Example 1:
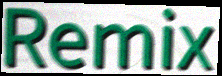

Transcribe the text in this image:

Remix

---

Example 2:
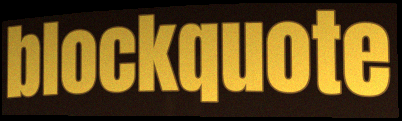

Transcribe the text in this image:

blockquote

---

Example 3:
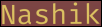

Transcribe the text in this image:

Nashik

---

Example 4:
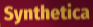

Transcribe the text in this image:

Synthetica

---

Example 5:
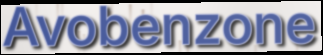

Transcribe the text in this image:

Avobenzone